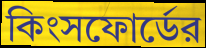
কিংসফোর্ডের